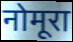
नोमूरा